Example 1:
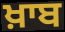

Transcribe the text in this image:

ਖ਼ਾਬ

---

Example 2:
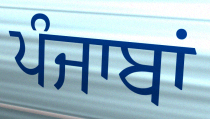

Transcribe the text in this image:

ਪੰਜਾਬਾਂ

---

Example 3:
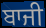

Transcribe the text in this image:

ਬਾਜੀ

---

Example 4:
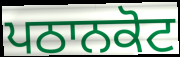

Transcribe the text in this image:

ਪਠਾਨਕੋਟ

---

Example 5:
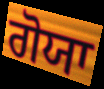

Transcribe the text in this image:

ਗੋਯਾ